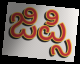
ಜಿಪ್ಸಿ